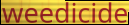
weedicide